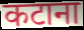
कटाना